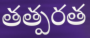
తత్పరత